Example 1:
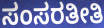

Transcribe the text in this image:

ಸಂಸರತೀತಿ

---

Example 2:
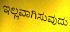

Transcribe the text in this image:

ಇಲ್ಲವಾಗಿಸುವುದು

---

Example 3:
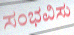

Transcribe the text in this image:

ಸಂಭವಿಸು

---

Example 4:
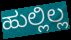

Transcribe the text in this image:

ಹುಲ್ಲಿಲ್ಲ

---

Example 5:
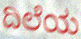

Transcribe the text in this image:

ದಿಲೆಯ